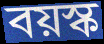
বয়স্ক